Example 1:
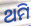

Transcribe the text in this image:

ଥମି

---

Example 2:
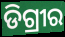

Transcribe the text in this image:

ଡିଗ୍ରୀର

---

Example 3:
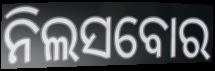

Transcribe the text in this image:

ନିଲସବୋର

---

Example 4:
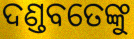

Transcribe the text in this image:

ଦଣ୍ଡବତେଙ୍କୁ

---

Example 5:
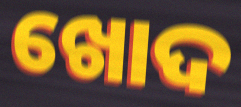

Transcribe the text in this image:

ଖୋଦ